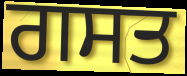
ਗਸਤ